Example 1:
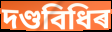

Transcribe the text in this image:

দণ্ডবিধিৰ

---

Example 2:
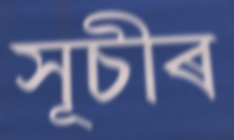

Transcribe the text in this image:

সূচীৰ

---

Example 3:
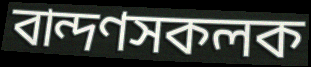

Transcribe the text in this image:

বান্দণসকলক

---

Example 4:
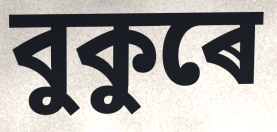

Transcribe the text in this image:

বুকুৰে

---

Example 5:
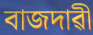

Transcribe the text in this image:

বাজদাৱী